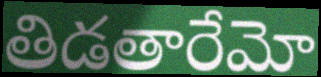
తిడతారేమో